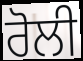
ਰੋਲੀ